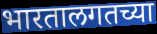
भारतालगतच्या